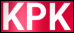
KPK